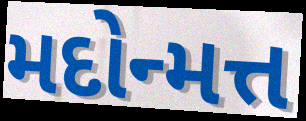
મદોન્મત્ત